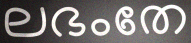
ലഭംതേ